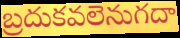
బ్రదుకవలెనుగదా